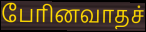
பேரினவாதச்